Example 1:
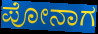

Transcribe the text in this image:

ಪೋನಾಗ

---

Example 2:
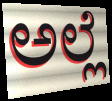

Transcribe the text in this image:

ಅಲ್ಲೆ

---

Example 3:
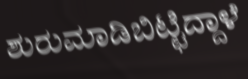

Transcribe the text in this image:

ಶುರುಮಾಡಿಬಿಟ್ಟಿದ್ದಾಳೆ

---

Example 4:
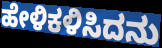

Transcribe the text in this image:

ಹೇಳಿಕಳಿಸಿದನು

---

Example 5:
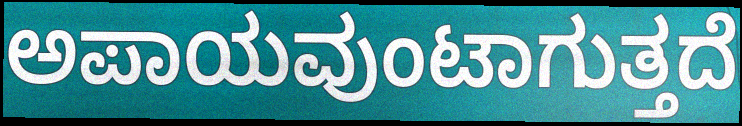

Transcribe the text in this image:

ಅಪಾಯವುಂಟಾಗುತ್ತದೆ